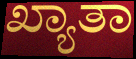
ಖ್ಯಾತಾ